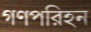
গণপরিহন